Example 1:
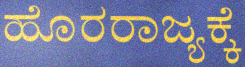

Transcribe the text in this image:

ಹೊರರಾಜ್ಯಕ್ಕೆ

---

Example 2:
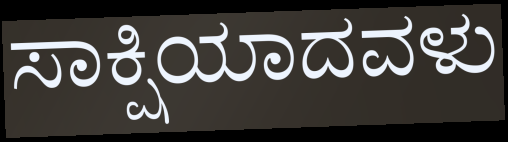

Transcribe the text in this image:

ಸಾಕ್ಷಿಯಾದವಳು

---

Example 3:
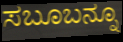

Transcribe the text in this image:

ಸಬೂಬನ್ನೂ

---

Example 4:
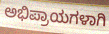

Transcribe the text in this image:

ಅಭಿಪ್ರಾಯಗಳಾಗಿ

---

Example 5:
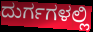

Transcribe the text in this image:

ದುರ್ಗಗಳಲ್ಲಿ